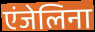
एंजेलिना